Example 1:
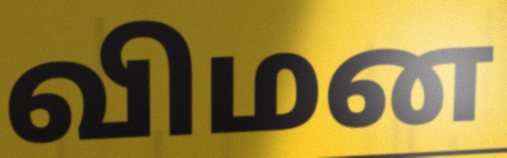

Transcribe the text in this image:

விமன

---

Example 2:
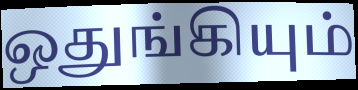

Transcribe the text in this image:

ஒதுங்கியும்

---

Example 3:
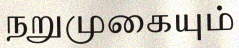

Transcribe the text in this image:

நறுமுகையும்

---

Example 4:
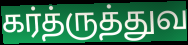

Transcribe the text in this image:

கர்த்ருத்துவ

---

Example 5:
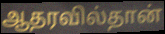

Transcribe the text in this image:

ஆதரவில்தான்